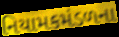
નિયામકમંડળના